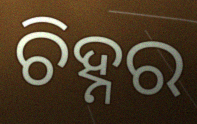
ଚିହ୍ନର